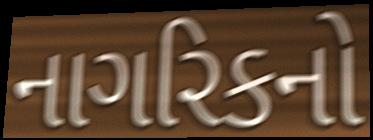
નાગરિકનો